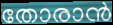
തോരാൻ